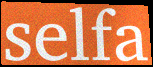
selfa